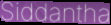
Siddantha